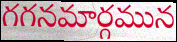
గగనమార్గమున